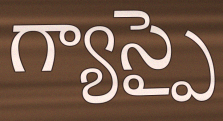
గ్యాస్పై